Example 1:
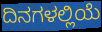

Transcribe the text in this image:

ದಿನಗಳಲ್ಲಿಯೆ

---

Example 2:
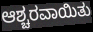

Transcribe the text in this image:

ಆಶ್ಚರವಾಯಿತು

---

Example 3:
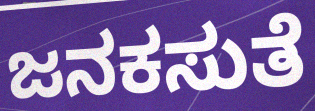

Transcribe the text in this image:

ಜನಕಸುತೆ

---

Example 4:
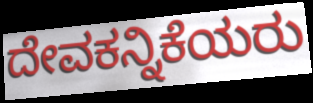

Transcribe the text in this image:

ದೇವಕನ್ನಿಕೆಯರು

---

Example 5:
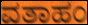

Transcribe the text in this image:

ವತಾಹಂ